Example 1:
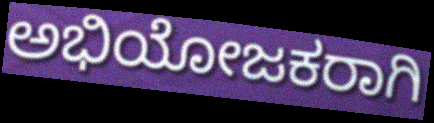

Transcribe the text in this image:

ಅಭಿಯೋಜಕರಾಗಿ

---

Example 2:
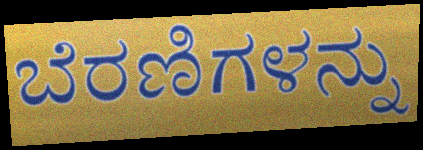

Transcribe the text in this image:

ಬೆರಣಿಗಳನ್ನು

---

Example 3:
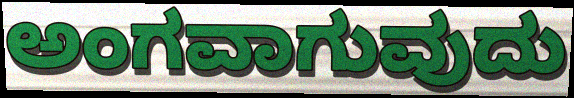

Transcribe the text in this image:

ಅಂಗವಾಗುವುದು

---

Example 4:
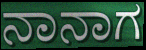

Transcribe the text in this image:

ನಾನಾಗ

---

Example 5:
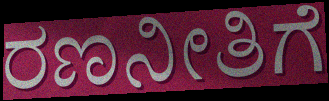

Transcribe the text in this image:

ರಣನೀತಿಗೆ